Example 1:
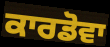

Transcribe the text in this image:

ਕਾਰਡੋਵਾ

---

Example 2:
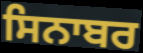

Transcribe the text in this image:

ਸਿਨਾਬਰ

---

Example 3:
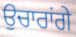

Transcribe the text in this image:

ਉਚਾਰਾਂਗੇ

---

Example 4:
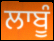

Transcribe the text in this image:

ਲਾਬੂੰ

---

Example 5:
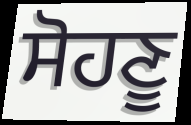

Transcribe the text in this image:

ਸੋਹਣੂ